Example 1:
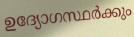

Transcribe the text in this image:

ഉദ്യോഗസ്ഥർക്കും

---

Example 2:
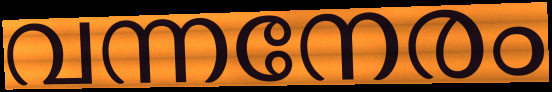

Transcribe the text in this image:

വന്നനേരം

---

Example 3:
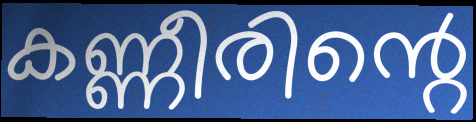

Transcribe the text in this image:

കണ്ണീരിന്റെ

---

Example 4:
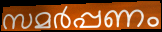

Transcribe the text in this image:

സമർപ്പണം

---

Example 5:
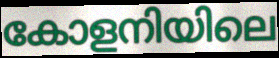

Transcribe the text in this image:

കോളനിയിലെ